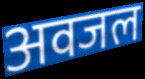
अवजल